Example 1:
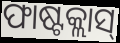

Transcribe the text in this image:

ଫାଷ୍ଟକ୍ଲାସ୍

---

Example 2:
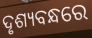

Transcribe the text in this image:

ଦୃଶ୍ୟବନ୍ଧରେ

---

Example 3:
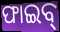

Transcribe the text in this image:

ଫାଇବ୍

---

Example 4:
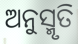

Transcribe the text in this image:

ଅନୁସ୍ମୃତି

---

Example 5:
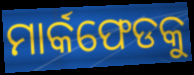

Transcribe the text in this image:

ମାର୍କଫେଡକୁ